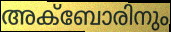
അക്ബോരിനും